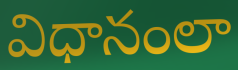
విధానంలా